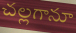
చల్లగానూ